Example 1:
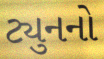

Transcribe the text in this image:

ટ્યુનનો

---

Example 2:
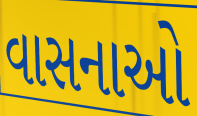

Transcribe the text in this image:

વાસનાઓ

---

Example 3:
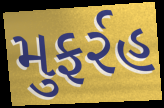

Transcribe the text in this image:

મુફર્રહ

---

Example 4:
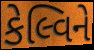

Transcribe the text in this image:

કેલ્વિને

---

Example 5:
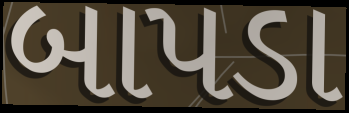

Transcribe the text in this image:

બાપડા